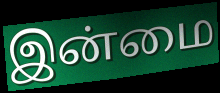
இன்மை